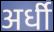
अर्धी